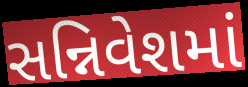
સન્નિવેશમાં